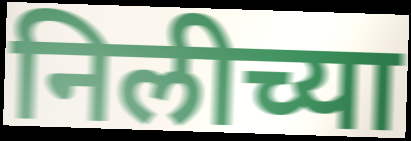
निलीच्या